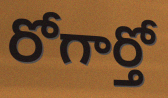
రోగార్తో